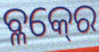
ବ୍ଳକ୍‍ରେ